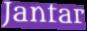
Jantar